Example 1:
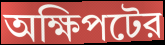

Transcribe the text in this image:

অক্ষিপটের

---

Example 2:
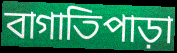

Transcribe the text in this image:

বাগাতিপাড়া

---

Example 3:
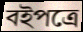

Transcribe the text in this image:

বইপত্রে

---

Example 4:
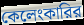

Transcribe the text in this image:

কেলেংকারির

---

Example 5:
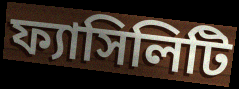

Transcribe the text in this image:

ফ্যাসিলিটি